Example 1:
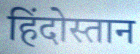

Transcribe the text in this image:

हिंदोस्तान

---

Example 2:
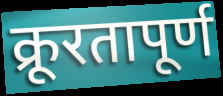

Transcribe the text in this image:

क्रूरतापूर्ण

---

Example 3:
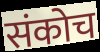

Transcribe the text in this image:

संकोच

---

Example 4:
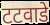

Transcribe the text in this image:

टटवाडे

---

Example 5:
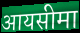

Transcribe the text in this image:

आयसीमा